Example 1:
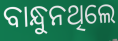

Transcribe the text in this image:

ବାନ୍ଧୁନଥିଲେ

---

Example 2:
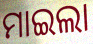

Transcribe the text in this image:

ମାଇଲା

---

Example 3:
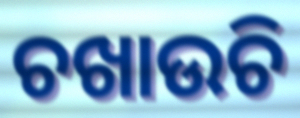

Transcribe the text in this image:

ଚଖାଉଚି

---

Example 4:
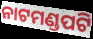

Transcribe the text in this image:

ନାଟମଣ୍ଡପଟି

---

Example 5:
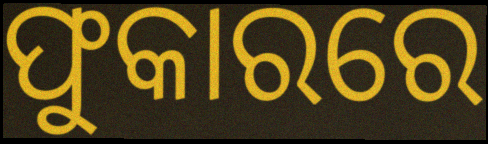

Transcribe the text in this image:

ଫୁକାରରେ